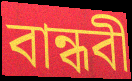
বান্ধবী